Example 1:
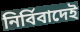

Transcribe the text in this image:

নির্বিবাদেই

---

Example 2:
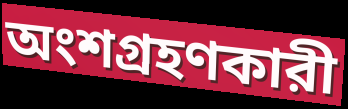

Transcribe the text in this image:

অংশগ্রহণকারী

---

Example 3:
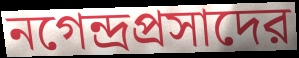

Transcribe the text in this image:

নগেন্দ্রপ্রসাদের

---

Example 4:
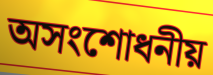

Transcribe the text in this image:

অসংশোধনীয়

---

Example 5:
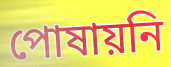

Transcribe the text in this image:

পোষায়নি